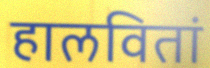
हालवितां